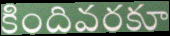
కిందివరకూ